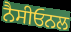
ਨੈਸੀਓਨਲ